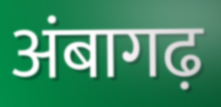
अंबागढ़